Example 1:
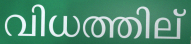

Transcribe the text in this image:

വിധത്തില്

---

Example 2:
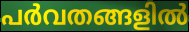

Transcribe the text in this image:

പർവതങ്ങളിൽ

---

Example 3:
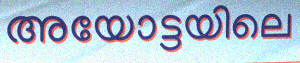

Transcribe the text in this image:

അയോട്ടയിലെ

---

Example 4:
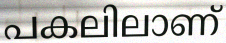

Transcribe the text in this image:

പകലിലാണ്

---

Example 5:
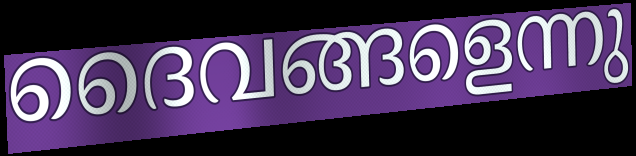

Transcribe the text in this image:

ദൈവങ്ങളെന്നു